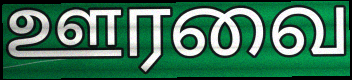
ஊரவை